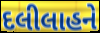
દલીલાહને